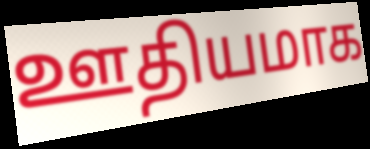
ஊதியமாக